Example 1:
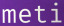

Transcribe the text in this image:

meti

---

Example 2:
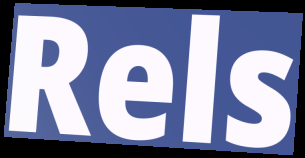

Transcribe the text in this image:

Rels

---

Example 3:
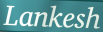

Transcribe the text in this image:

Lankesh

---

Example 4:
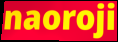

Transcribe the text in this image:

naoroji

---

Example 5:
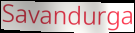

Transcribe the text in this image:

Savandurga